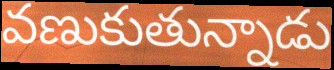
వణుకుతున్నాడు